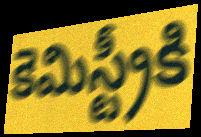
కెమిస్ట్రీకి